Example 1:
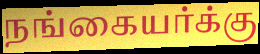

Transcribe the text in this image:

நங்கையர்க்கு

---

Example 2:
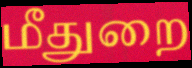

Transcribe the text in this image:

மீதுறை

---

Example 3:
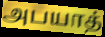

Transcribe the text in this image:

அபயாத்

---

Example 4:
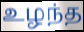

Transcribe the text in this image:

உழந்த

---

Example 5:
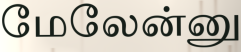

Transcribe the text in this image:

மேலேன்னு